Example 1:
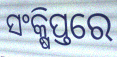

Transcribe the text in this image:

ସଂକ୍ଷିପ୍ତରେ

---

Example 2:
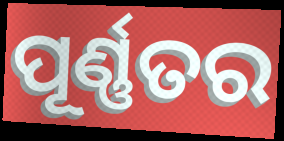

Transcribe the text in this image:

ପୂର୍ଣ୍ଣତର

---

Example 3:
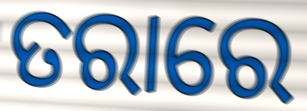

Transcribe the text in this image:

ତରାରେ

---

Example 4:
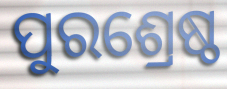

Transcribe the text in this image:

ପୁରଶ୍ରେଷ୍ଠ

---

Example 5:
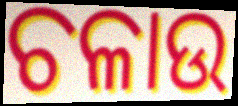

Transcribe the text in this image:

ଚଳାଉ